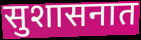
सुशासनात